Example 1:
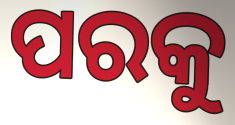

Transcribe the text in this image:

ପରକୁ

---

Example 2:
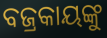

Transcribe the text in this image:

ବଜ୍ରକାୟଙ୍କୁ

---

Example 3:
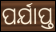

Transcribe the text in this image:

ପର୍ଯାପ୍ତ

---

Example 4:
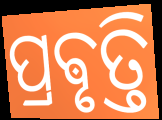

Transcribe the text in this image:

ପ୍ରଵୃତ୍ତି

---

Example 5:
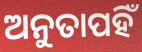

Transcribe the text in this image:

ଅନୁତାପହିଁ